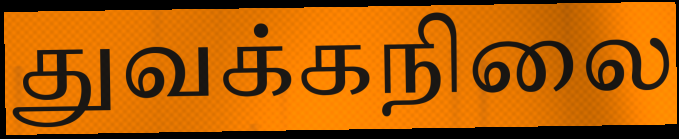
துவக்கநிலை